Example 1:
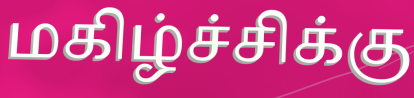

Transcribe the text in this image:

மகிழ்ச்சிக்கு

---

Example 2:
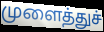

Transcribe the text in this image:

முளைத்துச்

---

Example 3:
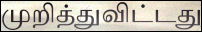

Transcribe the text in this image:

முறித்துவிட்டது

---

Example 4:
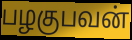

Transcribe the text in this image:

பழகுபவன்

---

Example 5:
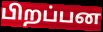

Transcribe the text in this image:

பிறப்பன